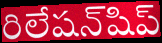
రిలేషన్‌షిప్